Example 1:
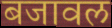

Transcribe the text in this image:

बजावल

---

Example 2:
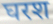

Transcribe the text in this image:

घरश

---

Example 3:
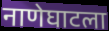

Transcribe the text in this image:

नाणेघाटला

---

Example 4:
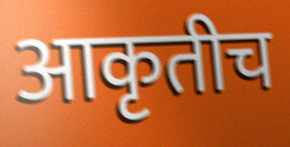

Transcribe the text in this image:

आकृतीच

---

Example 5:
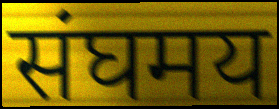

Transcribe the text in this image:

संघमय